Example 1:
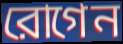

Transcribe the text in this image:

রোগেন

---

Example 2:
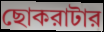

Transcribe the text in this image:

ছোকরাটার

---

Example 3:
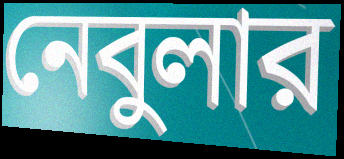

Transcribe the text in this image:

নেবুলার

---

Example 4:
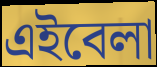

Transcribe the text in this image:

এইবেলা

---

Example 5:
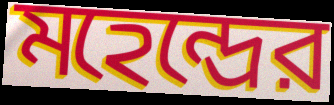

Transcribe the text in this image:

মহেন্দ্রের